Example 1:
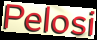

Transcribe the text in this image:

Pelosi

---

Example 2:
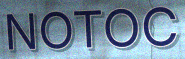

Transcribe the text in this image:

NOTOC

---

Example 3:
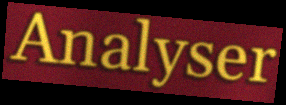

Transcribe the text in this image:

Analyser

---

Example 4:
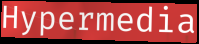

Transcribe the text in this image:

Hypermedia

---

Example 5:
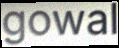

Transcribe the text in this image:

gowal